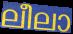
ലീലാ